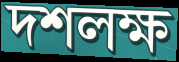
দশলক্ষ